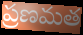
ప్రణమత